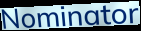
Nominator